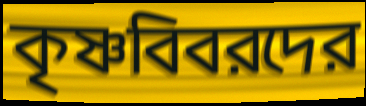
কৃষ্ণবিবরদের